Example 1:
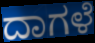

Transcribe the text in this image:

ದಾಗಳೆ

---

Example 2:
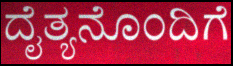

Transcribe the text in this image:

ದೈತ್ಯನೊಂದಿಗೆ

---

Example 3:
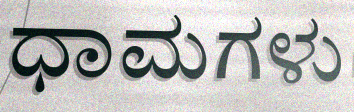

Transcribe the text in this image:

ಧಾಮಗಳು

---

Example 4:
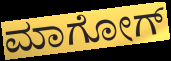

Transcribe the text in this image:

ಮಾಗೋಗ್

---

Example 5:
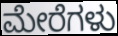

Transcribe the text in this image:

ಮೇರೆಗಳು